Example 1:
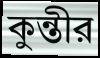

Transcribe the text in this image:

কুন্তীর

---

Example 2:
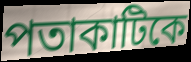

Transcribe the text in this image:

পতাকাটিকে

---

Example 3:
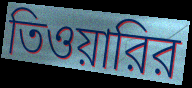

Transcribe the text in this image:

তিওয়ারির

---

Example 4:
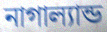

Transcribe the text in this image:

নাগাল্যান্ড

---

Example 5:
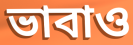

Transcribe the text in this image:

ভাবাও